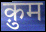
क़ुम